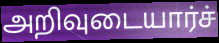
அறிவுடையார்ச்